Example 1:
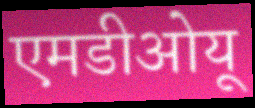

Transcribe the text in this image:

एमडीओयू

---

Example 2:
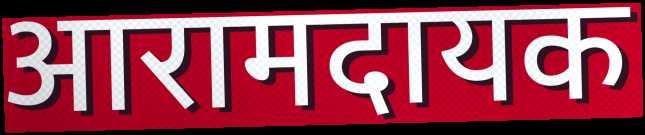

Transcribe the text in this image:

आरामदायक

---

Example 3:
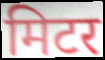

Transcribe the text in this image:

मिटर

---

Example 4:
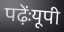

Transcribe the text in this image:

पढ़ेंःयूपी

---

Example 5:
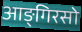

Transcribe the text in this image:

आङ्गिरसो